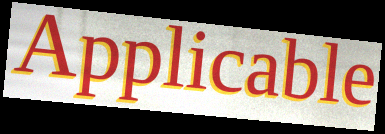
Applicable